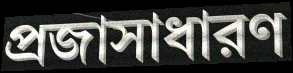
প্রজাসাধারণ